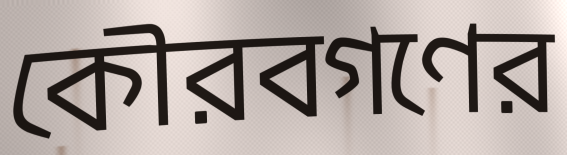
কৌরবগণের